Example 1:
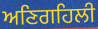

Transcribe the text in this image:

ਅਣਿਗਹਿਲੀ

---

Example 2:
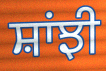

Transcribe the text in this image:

ਸ਼ਾਂਝੀ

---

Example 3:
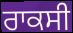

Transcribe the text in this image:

ਰਾਕਸੀ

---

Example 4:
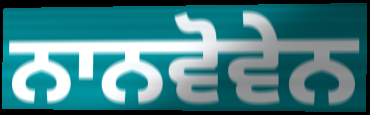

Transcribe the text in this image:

ਨਾਨਵੋਵੇਨ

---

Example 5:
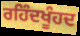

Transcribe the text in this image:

ਰਹਿੰਦਖੂੰਹਦ